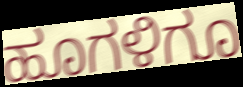
ಹೂಗಳಿಗೂ